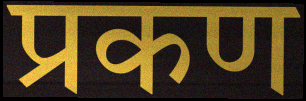
प्रकण